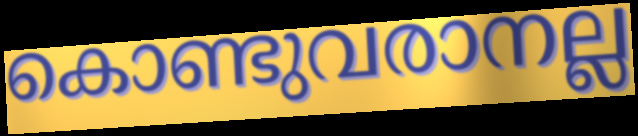
കൊണ്ടുവരാനല്ല